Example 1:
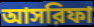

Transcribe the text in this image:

আসরিফা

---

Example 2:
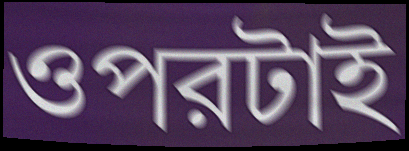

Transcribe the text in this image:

ওপরটাই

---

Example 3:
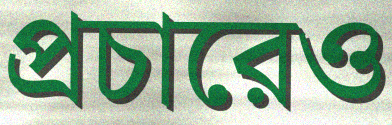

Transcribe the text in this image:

প্রচারেও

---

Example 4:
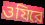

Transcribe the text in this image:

ওযিরে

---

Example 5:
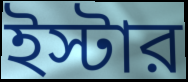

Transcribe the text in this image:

ইস্টার